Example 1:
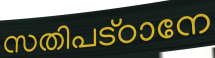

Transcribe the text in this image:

സതിപട്ഠാനേ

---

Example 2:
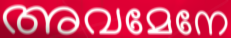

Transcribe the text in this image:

അവമേനേ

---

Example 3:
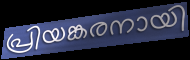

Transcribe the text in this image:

പ്രിയങ്കരനായി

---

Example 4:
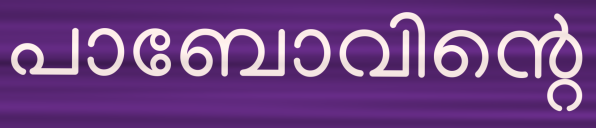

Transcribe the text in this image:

പാബോവിന്റെ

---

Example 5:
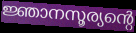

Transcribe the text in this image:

ജ്ഞാനസൂര്യന്റെ